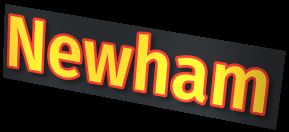
Newham